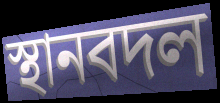
স্থানবদল